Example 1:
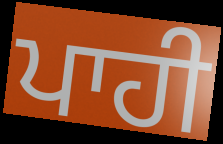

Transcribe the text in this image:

ਪਾਹੀ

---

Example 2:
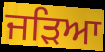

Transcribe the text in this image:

ਜੜਿਆ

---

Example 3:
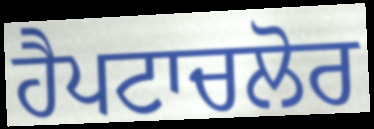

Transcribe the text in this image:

ਹੈਪਟਾਚਲੋਰ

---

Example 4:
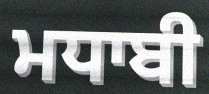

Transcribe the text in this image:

ਮਧਾਬੀ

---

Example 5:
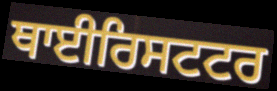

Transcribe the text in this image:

ਥਾਈਰਿਸਟਟਰ